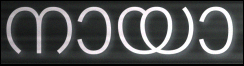
നായാ